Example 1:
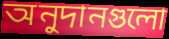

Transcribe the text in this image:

অনুদানগুলো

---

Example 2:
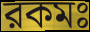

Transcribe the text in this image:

রকমঃ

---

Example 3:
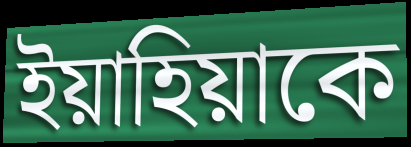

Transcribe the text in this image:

ইয়াহিয়াকে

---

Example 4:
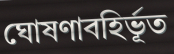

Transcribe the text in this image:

ঘোষণাবহির্ভূত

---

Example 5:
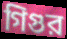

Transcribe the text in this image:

গিগুর